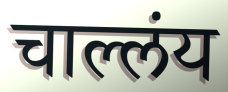
चाल्लंय